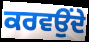
ਕਰਵਉਂਦੇ